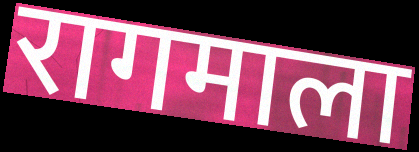
रागमाला